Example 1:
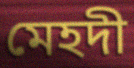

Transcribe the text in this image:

মেহদী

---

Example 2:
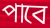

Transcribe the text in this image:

পাবে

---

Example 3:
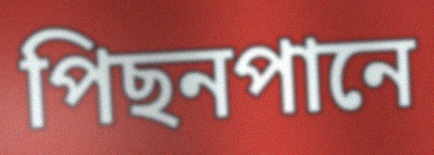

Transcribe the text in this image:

পিছনপানে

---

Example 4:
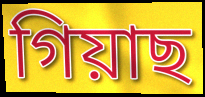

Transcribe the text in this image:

গিয়াছ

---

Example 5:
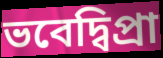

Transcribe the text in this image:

ভবেদ্বিপ্রা